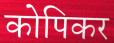
कोपिकर